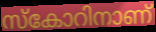
സ്കോറിനാണ്